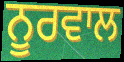
ਨੂਰਵਾਲ